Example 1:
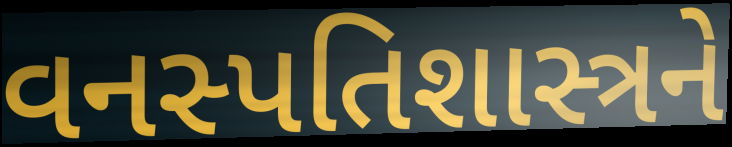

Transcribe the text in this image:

વનસ્પતિશાસ્ત્રને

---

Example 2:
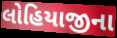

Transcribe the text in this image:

લોહિયાજીના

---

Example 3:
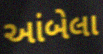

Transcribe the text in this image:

આંબેલા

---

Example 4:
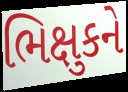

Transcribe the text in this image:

ભિક્ષુકને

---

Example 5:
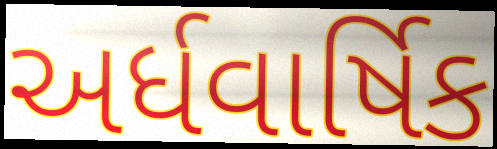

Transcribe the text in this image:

અર્ધવાર્ષિક